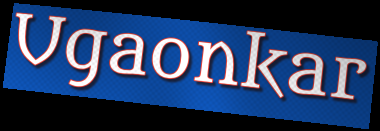
Ugaonkar